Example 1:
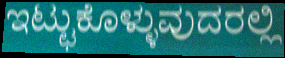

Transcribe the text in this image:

ಇಟ್ಟುಕೊಳ್ಳುವುದರಲ್ಲಿ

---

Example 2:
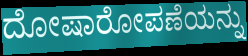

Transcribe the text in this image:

ದೋಷಾರೋಪಣೆಯನ್ನು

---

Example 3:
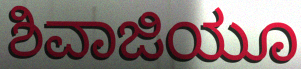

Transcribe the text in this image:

ಶಿವಾಜಿಯೂ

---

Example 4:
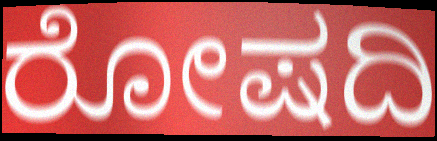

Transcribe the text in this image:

ರೋಷದಿ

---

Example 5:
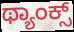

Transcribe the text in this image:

ಥ್ಯಾಂಕ್ಸ್